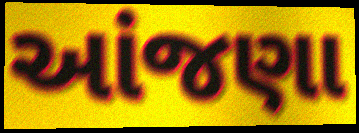
આંજણા